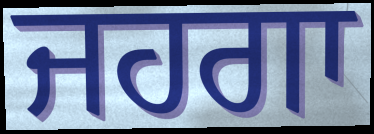
ਜਹਗਾ